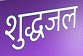
शुद्धजल